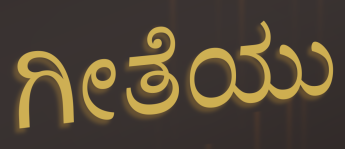
ಗೀತೆಯು